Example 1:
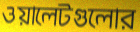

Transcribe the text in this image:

ওয়ালেটগুলোর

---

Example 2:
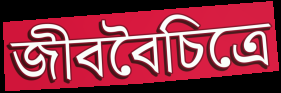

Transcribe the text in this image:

জীববৈচিত্রে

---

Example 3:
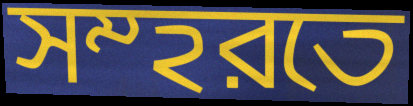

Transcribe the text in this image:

সম্হরতে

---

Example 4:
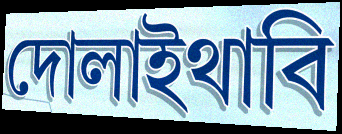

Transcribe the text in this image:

দোলাইথাবি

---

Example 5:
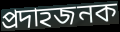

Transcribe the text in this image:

প্রদাহজনক